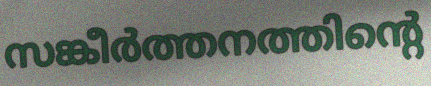
സങ്കീർത്തനത്തിന്റെ